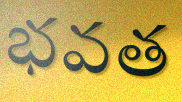
భవత